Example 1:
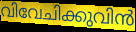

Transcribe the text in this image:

വിവേചിക്കുവിൻ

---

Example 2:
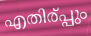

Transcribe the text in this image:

എതിര്പ്പും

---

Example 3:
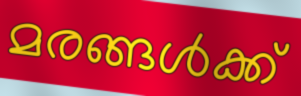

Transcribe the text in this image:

മരങ്ങൾക്ക്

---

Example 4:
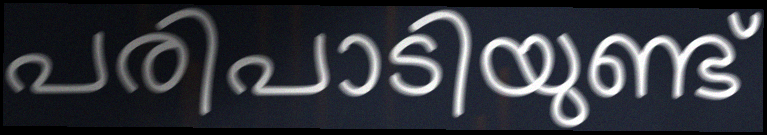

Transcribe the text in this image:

പരിപാടിയുണ്ട്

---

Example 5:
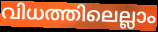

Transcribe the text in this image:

വിധത്തിലെല്ലാം